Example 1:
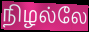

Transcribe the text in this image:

நிழல்லே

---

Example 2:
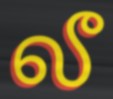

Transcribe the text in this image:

லீ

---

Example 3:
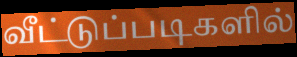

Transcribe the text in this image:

வீட்டுப்படிகளில்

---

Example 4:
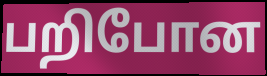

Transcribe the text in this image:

பறிபோன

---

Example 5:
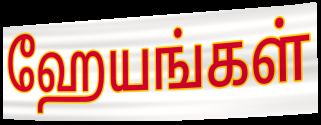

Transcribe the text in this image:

ஹேயங்கள்